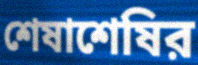
শেষাশেষির